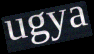
ugya